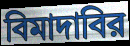
বিমাদাবির